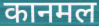
कानमल